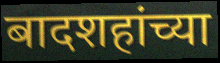
बादशहांच्या